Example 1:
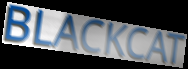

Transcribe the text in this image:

BLACKCAT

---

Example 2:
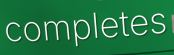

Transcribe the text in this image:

completes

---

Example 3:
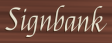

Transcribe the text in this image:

Signbank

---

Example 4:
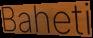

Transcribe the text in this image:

Baheti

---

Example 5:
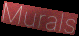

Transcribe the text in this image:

Murals